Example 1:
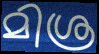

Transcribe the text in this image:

മിശ്ര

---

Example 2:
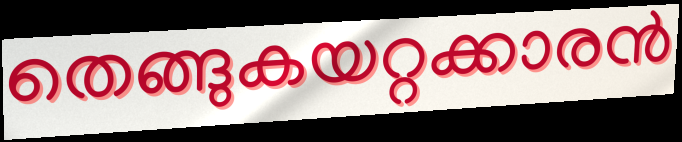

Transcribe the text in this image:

തെങ്ങുകയറ്റക്കാരൻ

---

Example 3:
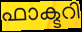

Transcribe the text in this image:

ഫാക്ടറി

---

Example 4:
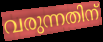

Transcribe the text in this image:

വരുന്നതിന്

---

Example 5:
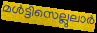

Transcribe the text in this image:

മൾട്ടിസെല്ലുലാർ